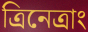
ত্রিনেত্রাং